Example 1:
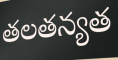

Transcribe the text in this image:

తలతన్యత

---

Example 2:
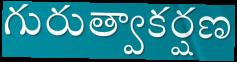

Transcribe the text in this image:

గురుత్వాకర్షణ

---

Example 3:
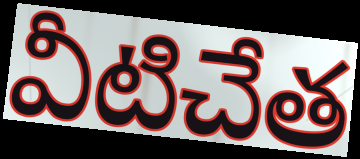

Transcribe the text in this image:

వీటిచేత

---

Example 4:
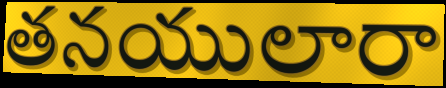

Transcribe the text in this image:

తనయులారా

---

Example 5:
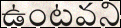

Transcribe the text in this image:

ఉంటవని